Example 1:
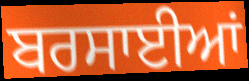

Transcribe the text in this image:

ਬਰਸਾਈਆਂ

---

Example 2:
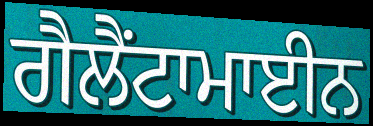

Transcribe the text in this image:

ਗੈਲੈਂਟਾਮਾਈਨ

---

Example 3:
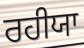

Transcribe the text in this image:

ਰਹੀਯਾ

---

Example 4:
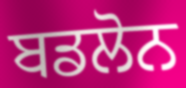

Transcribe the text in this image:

ਬਡਲੋਨ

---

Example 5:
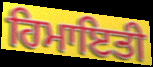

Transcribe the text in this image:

ਹਿਮਾਇਤੀ